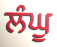
ਲੰਘੂ